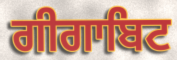
ਗੀਗਾਬਿਟ